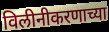
विलीनीकरणाच्या